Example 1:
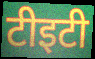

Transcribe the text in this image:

टीइटी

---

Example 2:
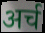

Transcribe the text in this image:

अर्च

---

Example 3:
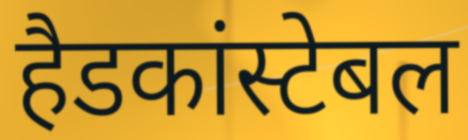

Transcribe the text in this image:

हैडकांस्टेबल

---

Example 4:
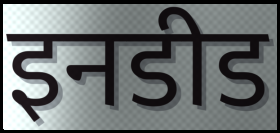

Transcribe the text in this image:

इनडीड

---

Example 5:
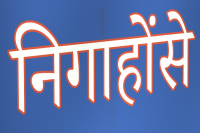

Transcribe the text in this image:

निगाहोंसे